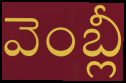
వెంబ్లీ